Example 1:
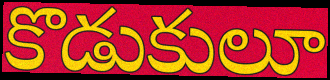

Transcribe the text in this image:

కొడుకులూ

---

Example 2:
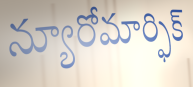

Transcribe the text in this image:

న్యూరోమార్ఫిక్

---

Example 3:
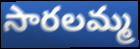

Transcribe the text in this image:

సారలమ్మ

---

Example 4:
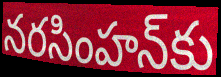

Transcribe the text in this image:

నరసింహన్‌కు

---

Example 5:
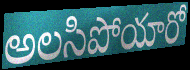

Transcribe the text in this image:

అలసిపోయారో